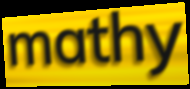
mathy